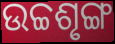
ଉଚ୍ଚଶୃଙ୍ଗ